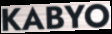
KABYO